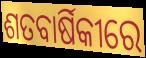
ଶତବାର୍ଷିକୀରେ